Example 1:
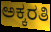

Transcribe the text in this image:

ಅಕ್ಕರತಿ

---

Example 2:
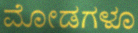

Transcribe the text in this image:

ಮೋಡಗಳೂ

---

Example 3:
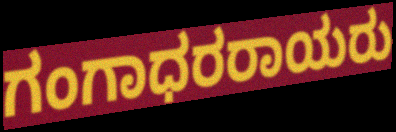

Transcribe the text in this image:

ಗಂಗಾಧರರಾಯರು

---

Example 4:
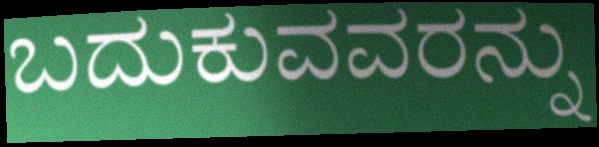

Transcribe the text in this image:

ಬದುಕುವವರನ್ನು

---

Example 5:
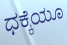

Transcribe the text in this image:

ಧಕ್ಕೆಯೂ